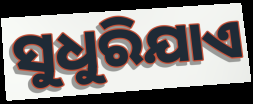
ସୁଧୁରିଯାଏ